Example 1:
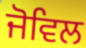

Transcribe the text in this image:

ਜੋਵਿਲ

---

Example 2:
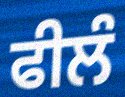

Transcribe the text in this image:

ਫੀਲੰ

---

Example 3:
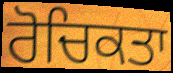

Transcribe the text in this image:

ਰੋਚਿਕਤਾ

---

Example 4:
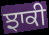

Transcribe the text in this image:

ਝਾਕੀ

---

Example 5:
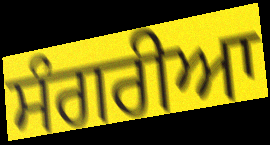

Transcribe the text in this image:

ਸੰਗਰੀਆ